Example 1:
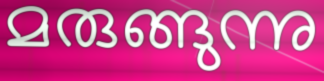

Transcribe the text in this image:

മരുങ്ങുന്നു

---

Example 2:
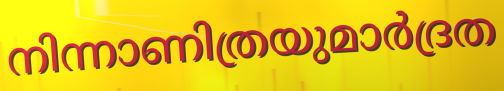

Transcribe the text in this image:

നിന്നാണിത്രയുമാർദ്രത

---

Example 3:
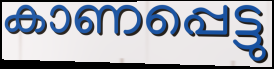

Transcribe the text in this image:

കാണപ്പെട്ടു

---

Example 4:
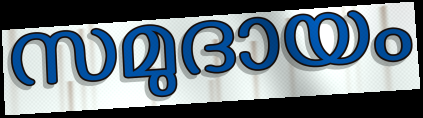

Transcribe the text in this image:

സമുദായം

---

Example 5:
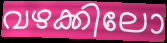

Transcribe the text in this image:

വഴക്കിലോ